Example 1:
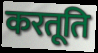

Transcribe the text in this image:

करतूति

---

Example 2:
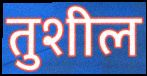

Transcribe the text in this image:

तुशील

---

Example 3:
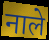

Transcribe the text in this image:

नाले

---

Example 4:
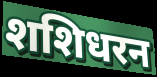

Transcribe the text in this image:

शशिधरन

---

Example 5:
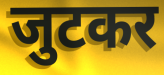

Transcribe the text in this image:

जुटकर